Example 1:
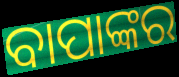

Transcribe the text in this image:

ବାପାଙ୍କର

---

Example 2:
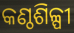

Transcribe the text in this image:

କଣ୍ଠଶିଳ୍ପୀ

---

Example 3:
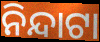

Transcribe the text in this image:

ନିନ୍ଦାଟା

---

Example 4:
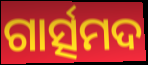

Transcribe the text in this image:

ଗାର୍ତ୍ସମଦ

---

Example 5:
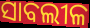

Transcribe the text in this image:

ସାବଲୀଳ